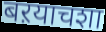
बऱयाचशा